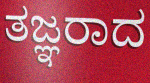
ತಜ್ಞರಾದ